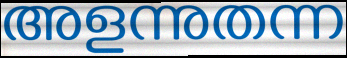
അളന്നുതന്ന